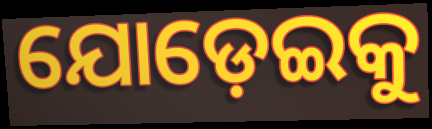
ଯୋଡ଼େଇକୁ